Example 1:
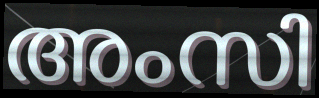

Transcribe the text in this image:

അംസി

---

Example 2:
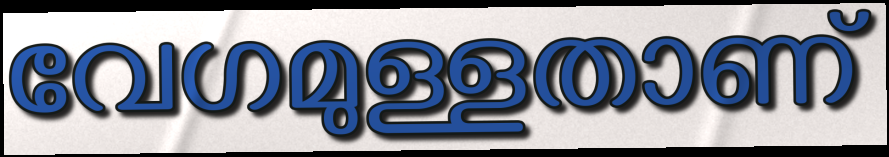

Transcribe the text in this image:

വേഗമുള്ളതാണ്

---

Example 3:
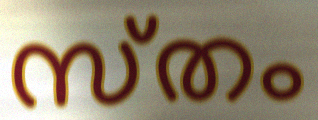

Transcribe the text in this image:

സ്‌തം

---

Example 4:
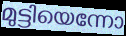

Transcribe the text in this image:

മുട്ടിയെന്നോ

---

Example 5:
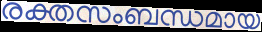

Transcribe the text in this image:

രക്തസംബന്ധമായ